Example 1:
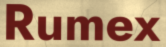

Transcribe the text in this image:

Rumex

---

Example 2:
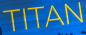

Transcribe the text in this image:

TITAN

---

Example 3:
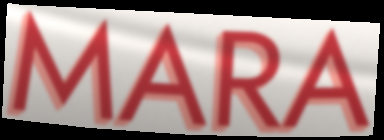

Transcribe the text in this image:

MARA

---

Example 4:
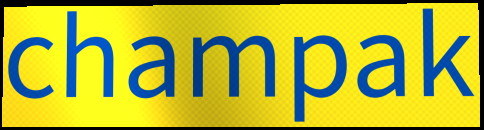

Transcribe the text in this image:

champak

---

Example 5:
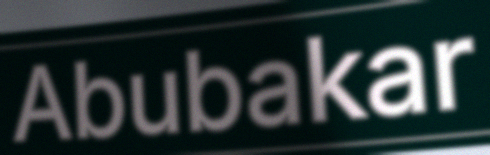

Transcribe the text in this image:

Abubakar